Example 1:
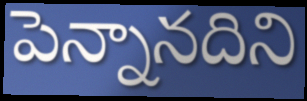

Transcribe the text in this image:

పెన్నానదిని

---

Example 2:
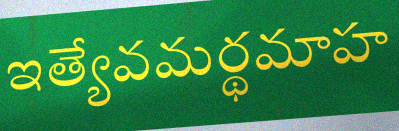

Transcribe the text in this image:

ఇత్యేవమర్థమాహ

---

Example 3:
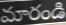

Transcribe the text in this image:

మారండి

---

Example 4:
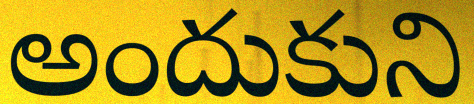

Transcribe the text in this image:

అందుకుని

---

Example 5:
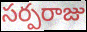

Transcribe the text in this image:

సర్పరాజు